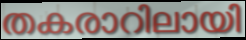
തകരാറിലായി